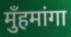
मुँहमांगा